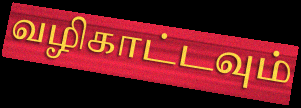
வழிகாட்டவும்